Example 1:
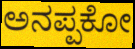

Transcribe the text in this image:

ಅನಪ್ಪಕೋ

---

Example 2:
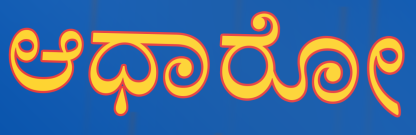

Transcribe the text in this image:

ಆಧಾರೋ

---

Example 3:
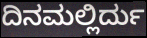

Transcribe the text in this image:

ದಿನಮಲ್ಲಿರ್ದು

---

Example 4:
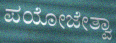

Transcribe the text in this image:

ಪಯೋಜೇತ್ವಾ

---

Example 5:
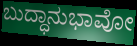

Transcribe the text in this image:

ಬುದ್ಧಾನುಭಾವೋ